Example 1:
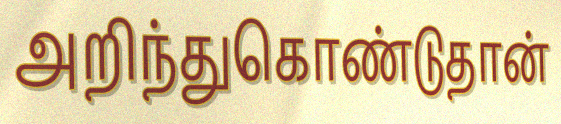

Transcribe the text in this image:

அறிந்துகொண்டுதான்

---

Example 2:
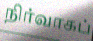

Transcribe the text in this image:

நிர்வாகப்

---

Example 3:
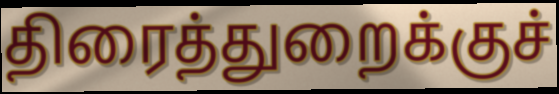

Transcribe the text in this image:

திரைத்துறைக்குச்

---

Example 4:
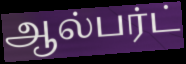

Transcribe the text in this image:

ஆல்பர்ட்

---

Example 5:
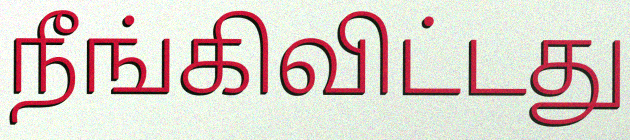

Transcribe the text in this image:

நீங்கிவிட்டது